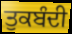
ਤੁਕਬੰਦੀ